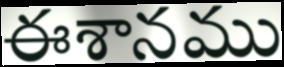
ఈశానము